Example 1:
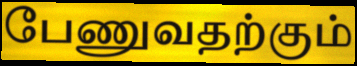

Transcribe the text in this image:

பேணுவதற்கும்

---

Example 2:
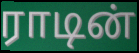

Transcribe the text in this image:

ராடின்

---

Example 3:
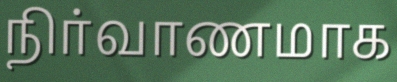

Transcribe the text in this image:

நிர்வாணமாக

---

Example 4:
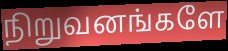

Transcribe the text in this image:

நிறுவனங்களே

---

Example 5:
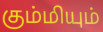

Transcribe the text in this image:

கும்மியும்